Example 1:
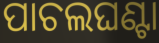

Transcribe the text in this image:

ପାଚଲଘଣ୍ଟା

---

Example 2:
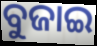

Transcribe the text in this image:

ବୁଜାଇ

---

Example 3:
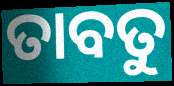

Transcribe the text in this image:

ତାବତୁ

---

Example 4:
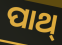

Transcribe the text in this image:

ପାଥ୍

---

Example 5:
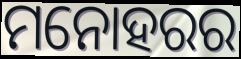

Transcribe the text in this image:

ମନୋହରର